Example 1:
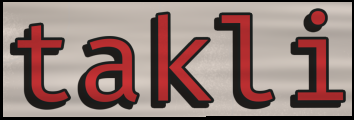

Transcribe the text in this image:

takli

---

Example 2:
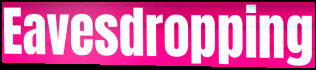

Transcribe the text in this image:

Eavesdropping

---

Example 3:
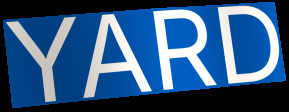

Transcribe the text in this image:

YARD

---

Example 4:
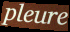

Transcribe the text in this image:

pleure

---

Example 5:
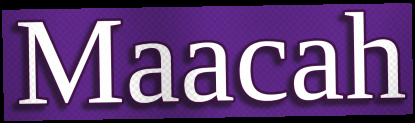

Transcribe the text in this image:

Maacah